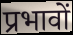
प्रभावों